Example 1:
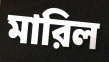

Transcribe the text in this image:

মারিল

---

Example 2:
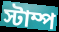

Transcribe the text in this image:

স্টাম্প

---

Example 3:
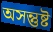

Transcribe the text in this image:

অসন্তুষ্ট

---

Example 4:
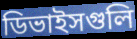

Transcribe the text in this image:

ডিভাইসগুলি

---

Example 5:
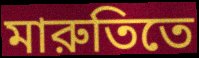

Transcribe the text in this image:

মারুতিতে